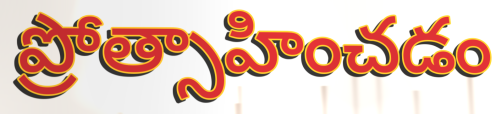
ప్రోత్సాహించడం